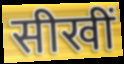
सीखीं